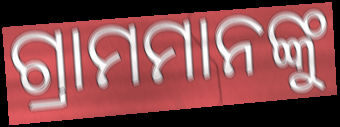
ଗ୍ରାମମାନଙ୍କୁ